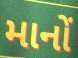
માનોં